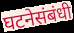
घटनेसंबंधी